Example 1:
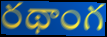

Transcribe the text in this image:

రథాంగ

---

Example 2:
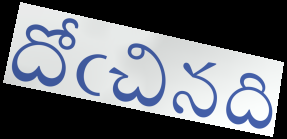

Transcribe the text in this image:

దోఁచినది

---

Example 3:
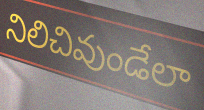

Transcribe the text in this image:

నిలిచివుండేలా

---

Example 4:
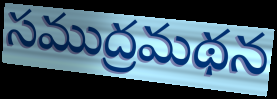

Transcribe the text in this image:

సముద్రమథన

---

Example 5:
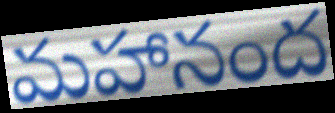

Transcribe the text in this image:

మహానంద